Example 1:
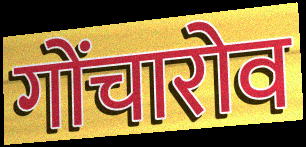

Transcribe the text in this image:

गोंचारोव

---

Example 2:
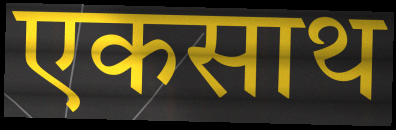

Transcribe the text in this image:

एकसाथ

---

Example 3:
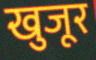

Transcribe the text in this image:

खुजूर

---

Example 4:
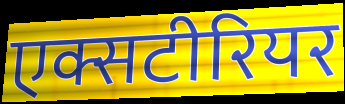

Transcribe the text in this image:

एक्सटीरियर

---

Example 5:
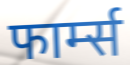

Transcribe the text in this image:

फार्म्स